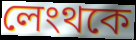
লেংথকে